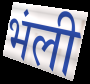
भंली